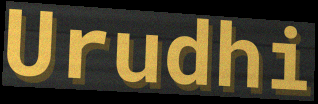
Urudhi